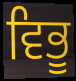
ਵਿਭੂ